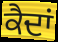
ਕੈਦਾਂ